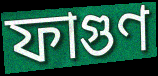
ফাগুণ